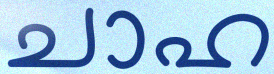
ചാഹ